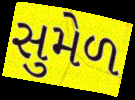
સુમેળ